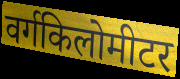
वर्गकिलोमीटर